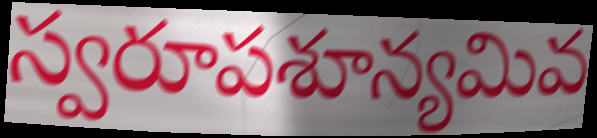
స్వరూపశూన్యమివ